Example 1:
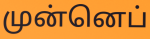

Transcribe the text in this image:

முன்னெப்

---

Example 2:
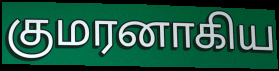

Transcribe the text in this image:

குமரனாகிய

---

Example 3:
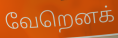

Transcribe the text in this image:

வேறெனக்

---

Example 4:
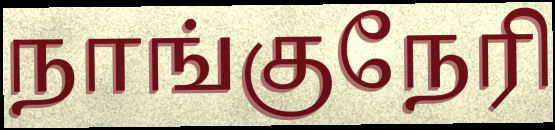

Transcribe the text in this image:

நாங்குநேரி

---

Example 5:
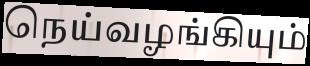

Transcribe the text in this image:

நெய்வழங்கியும்